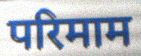
परिमाम